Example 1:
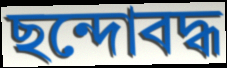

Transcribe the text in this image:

ছন্দোবদ্ধ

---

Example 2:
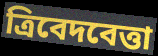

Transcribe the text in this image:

ত্রিবেদবেত্তা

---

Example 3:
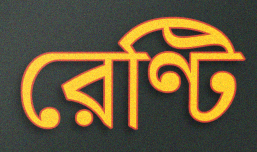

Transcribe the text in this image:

রেণ্টি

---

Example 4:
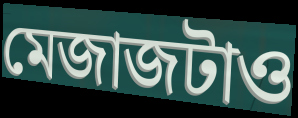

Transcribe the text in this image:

মেজাজটাও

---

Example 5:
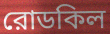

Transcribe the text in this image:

রোডকিল